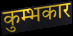
कुम्भकार